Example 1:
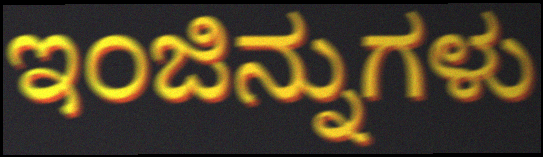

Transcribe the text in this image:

ಇಂಜಿನ್ನುಗಳು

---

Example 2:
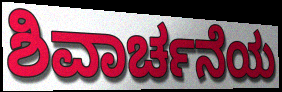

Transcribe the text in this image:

ಶಿವಾರ್ಚನೆಯ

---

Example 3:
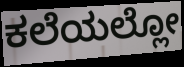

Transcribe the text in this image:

ಕಲೆಯಲ್ಲೋ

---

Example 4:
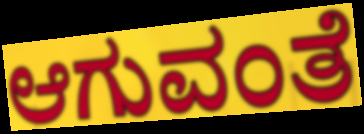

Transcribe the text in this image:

ಆಗುವಂತೆ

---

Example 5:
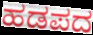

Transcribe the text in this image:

ಹಡಪದ